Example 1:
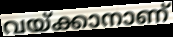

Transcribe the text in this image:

വയ്ക്കാനാണ്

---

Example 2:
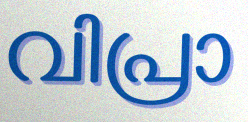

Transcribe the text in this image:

വിപ്രാ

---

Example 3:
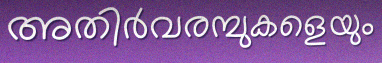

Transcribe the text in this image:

അതിർവരമ്പുകളെയും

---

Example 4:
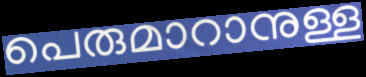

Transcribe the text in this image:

പെരുമാറാനുള്ള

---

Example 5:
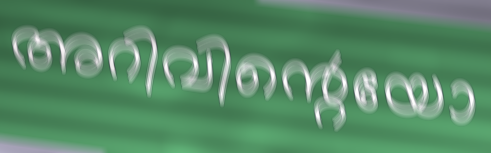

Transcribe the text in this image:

അറിവിന്റെയോ